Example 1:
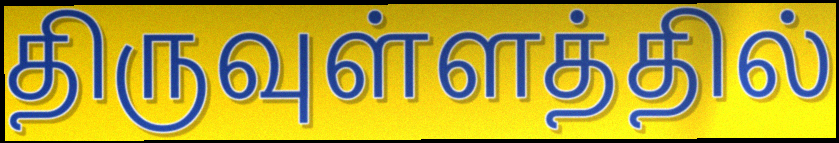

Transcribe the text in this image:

திருவுள்ளத்தில்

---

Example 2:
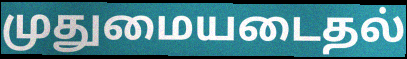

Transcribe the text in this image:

முதுமையடைதல்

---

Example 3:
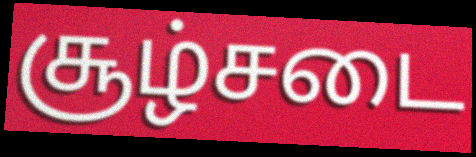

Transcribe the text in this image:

சூழ்சடை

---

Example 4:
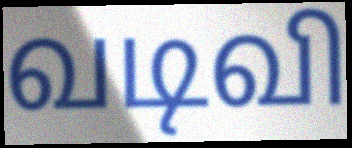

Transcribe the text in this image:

வடிவி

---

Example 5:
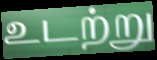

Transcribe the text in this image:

உடற்று